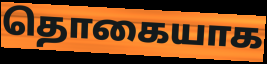
தொகையாக